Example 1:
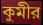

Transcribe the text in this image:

কুমীর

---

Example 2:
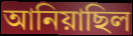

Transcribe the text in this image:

আনিয়াছিল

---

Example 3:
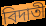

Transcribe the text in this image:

বিদাতী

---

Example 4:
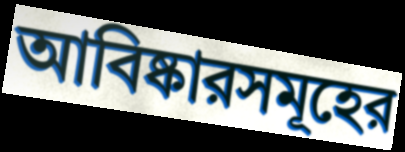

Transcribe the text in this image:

আবিষ্কারসমূহের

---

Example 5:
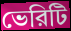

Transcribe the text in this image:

ভেরিটি